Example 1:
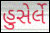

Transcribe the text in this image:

હુસેર્લે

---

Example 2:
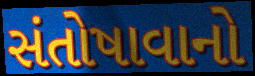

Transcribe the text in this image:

સંતોષાવાનો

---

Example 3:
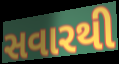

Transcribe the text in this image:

સવારથી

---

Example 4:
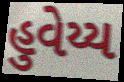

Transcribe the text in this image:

હુવેય્ય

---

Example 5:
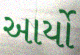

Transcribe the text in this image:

આર્યો